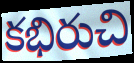
కభిరుచి